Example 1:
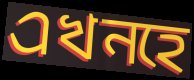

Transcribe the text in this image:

এখনহে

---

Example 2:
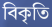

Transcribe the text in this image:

বিকৃতি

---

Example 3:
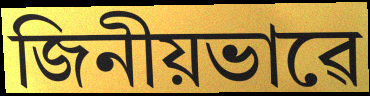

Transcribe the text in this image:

জিনীয়ভাৱে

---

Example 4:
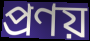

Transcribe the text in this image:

প্ৰণয়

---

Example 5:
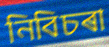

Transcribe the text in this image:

নিবিচৰা